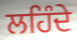
ਲਹਿੰਦੇ